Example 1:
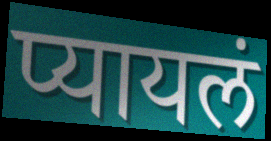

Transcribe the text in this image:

प्यायलं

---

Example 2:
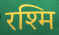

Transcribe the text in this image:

रश्मि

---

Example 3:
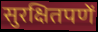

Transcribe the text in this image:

सुरक्षितपणें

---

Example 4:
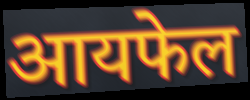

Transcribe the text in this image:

आयफेल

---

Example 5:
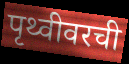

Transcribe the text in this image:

पृथ्वीवरची